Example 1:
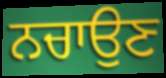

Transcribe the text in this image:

ਨਚਾਉਣ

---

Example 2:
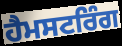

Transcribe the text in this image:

ਹੈਮਸਟਰਿੰਗ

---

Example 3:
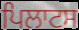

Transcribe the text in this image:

ਪਿਲਾਟਸ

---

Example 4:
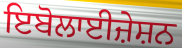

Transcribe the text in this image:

ਇਬੋਲਾਈਜ਼ੇਸ਼ਨ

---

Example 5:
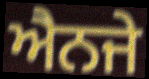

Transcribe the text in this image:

ਐਨਜੇ